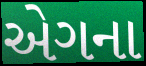
એગના